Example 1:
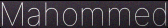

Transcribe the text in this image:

Mahommed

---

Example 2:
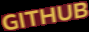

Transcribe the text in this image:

GITHUB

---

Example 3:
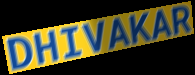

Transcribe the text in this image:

DHIVAKAR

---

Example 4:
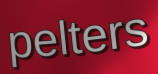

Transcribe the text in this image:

pelters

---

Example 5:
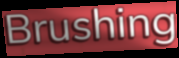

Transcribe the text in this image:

Brushing